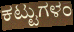
ಕಟ್ಟುಗಳಂ